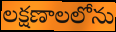
లక్షణాలలోను